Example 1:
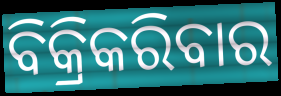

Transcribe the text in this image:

ବିକ୍ରିକରିବାର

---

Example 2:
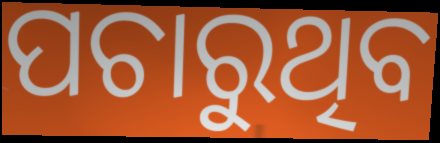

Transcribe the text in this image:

ପଚାରୁଥିବ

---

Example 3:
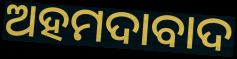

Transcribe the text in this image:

ଅହମଦାବାଦ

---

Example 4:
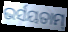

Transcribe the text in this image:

ଭର୍ସୟତାମ୍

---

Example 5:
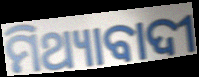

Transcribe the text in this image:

ମିଥ୍ୟାବାଦୀ